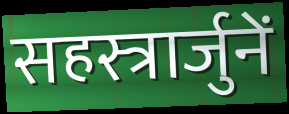
सहस्त्रार्जुनें